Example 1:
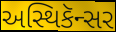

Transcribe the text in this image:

અસ્થિકૅન્સર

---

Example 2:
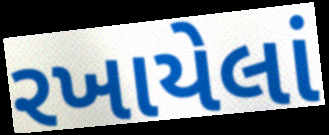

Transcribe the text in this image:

રખાયેલાં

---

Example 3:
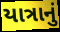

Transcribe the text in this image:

યાત્રાનું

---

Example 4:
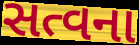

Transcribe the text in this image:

સત્વના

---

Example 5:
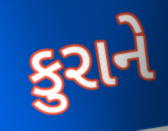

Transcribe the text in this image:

કુરાને